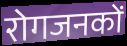
रोगजनकों